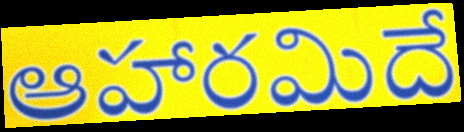
ఆహారమిదే